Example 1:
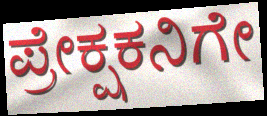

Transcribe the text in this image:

ಪ್ರೇಕ್ಷಕನಿಗೇ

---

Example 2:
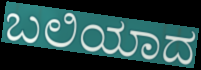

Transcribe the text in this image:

ಬಲಿಯಾದ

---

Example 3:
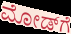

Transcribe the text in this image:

ಮೋಡ್‌ಗೆ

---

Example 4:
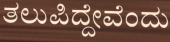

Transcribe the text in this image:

ತಲುಪಿದ್ದೇವೆಂದು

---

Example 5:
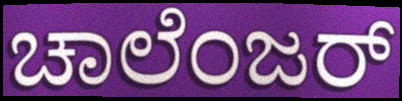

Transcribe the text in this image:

ಚಾಲೆಂಜರ್